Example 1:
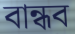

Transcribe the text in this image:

বান্ধব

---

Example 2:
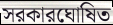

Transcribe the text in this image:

সরকারঘোষিত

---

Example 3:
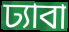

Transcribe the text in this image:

ঢ্যাবা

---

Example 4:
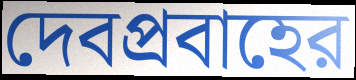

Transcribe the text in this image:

দেবপ্রবাহের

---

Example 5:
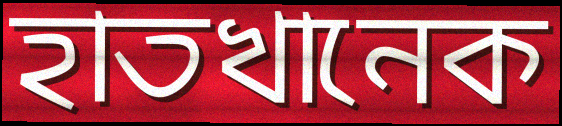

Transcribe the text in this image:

হাতখানেক